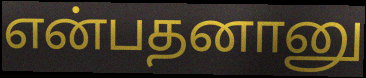
என்பதனானு